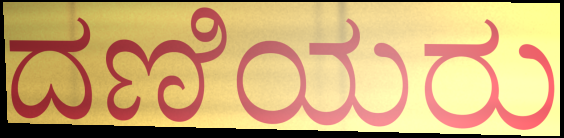
ದಣಿಯರು